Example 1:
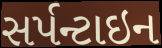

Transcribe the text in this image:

સર્પન્ટાઇન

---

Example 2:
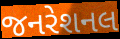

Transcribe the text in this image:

જનરેશનલ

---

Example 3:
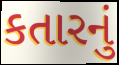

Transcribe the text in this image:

કતારનું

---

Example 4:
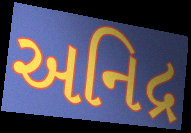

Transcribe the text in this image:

અનિદ્ર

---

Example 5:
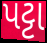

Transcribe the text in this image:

પટ્ટા